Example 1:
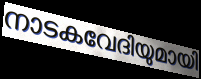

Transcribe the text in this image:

നാടകവേദിയുമായി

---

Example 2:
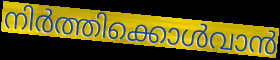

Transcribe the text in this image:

നിർത്തിക്കൊൾവാൻ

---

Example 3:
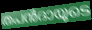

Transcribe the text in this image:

തപൻദായുടെ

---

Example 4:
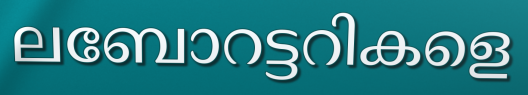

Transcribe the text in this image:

ലബോറട്ടറികളെ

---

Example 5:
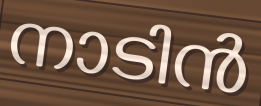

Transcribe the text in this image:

നാടിൻ